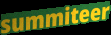
summiteer